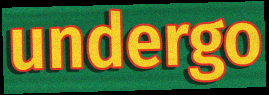
undergo